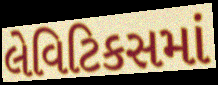
લેવિટિકસમાં